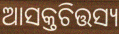
ଆସକ୍ତଚିତ୍ତସ୍ୟ